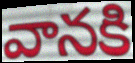
వానకి